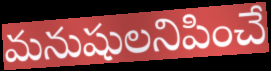
మనుషులనిపించే